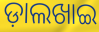
ଡ଼ାଲଖାଇ